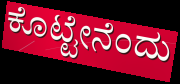
ಕೊಟ್ಟೇನೆಂದು